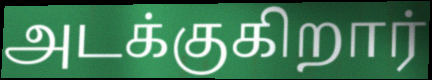
அடக்குகிறார்